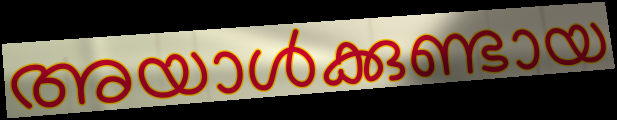
അയാൾക്കുണ്ടായ